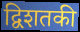
द्विशतकी